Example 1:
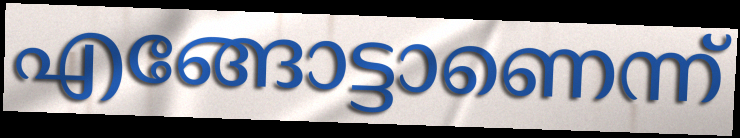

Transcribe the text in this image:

എങ്ങോട്ടാണെന്ന്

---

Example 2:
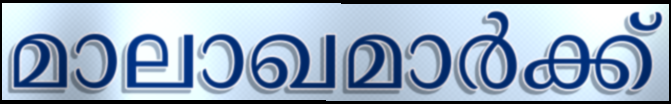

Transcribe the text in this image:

മാലാഖമാർക്ക്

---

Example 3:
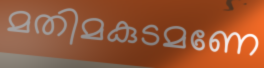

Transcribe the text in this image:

മതിമകുടമണേ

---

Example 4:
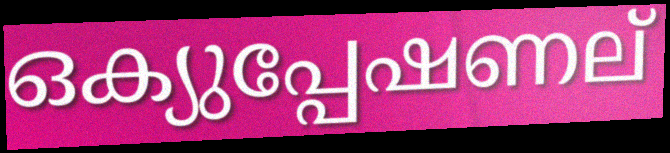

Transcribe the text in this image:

ഒക്യുപ്പേഷണല്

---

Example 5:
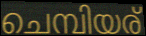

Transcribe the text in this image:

ചെമ്പിയര്